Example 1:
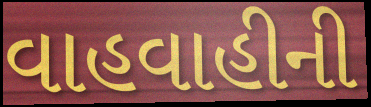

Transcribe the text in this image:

વાહવાહીની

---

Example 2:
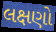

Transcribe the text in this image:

લક્ષણો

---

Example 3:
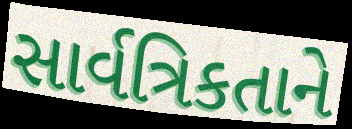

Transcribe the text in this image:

સાર્વત્રિકતાને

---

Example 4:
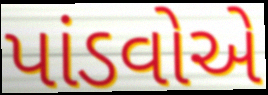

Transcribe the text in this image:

પાંડવોએ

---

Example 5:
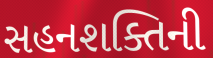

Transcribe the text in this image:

સહનશક્તિની